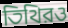
তিথিরও